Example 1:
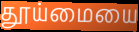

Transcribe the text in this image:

தூய்மையை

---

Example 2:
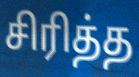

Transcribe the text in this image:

சிரித்த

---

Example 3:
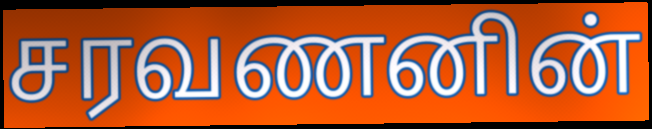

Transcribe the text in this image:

சரவணனின்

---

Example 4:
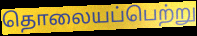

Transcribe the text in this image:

தொலையப்பெற்று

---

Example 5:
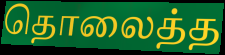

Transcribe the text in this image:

தொலைத்த